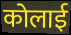
कोलाई